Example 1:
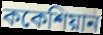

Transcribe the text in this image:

ককেশিয়ান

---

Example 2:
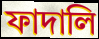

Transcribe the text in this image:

ফাদালি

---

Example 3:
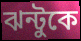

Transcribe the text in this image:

ঝন্টুকে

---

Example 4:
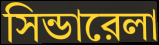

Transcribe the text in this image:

সিন্ডারেলা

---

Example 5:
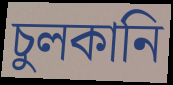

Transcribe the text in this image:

চুলকানি